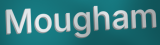
Mougham